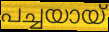
പച്ചയായ്